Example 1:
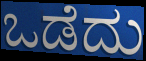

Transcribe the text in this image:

ಒಡೆದು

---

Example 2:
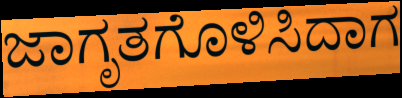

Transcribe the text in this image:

ಜಾಗೃತಗೊಳಿಸಿದಾಗ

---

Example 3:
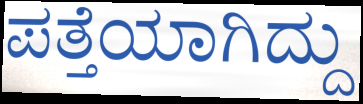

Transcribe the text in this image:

ಪತ್ತೆಯಾಗಿದ್ದು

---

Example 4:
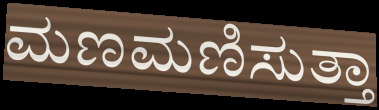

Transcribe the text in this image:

ಮಣಮಣಿಸುತ್ತಾ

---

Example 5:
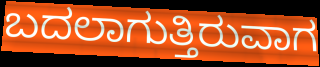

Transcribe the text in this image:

ಬದಲಾಗುತ್ತಿರುವಾಗ